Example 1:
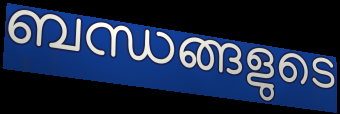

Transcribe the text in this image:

ബന്ധങ്ങളുടെ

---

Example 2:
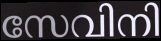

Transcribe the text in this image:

സേവിനി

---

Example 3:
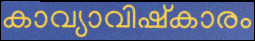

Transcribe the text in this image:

കാവ്യാവിഷ്കാരം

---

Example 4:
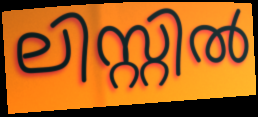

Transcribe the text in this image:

ലിസ്റ്റിൽ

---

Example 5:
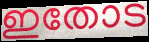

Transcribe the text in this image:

ഇതോട